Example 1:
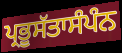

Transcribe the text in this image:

ਪ੍ਰਭੂਸੱਤਾਸੰਪੰਨ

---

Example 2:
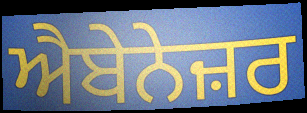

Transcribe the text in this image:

ਐਬੇਨੇਜ਼ਰ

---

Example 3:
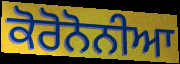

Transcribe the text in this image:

ਕੋਰੋਨੋਨੀਆ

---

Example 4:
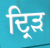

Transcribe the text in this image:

ਦ੍ਰਿੜ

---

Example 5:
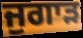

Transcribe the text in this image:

ਜੁਗਾੜ